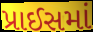
પ્રાઈસમાં